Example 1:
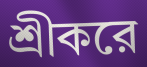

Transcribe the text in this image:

শ্রীকরে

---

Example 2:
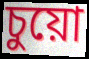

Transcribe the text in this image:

চুয়ো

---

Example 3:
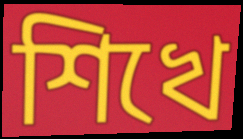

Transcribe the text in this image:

শিখে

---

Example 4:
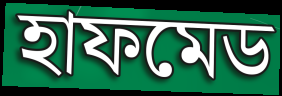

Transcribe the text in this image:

হাফমেড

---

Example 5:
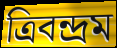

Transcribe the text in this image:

ত্রিবন্দ্রম